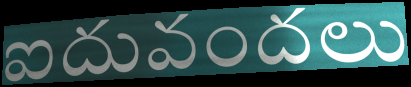
ఐదువందలు